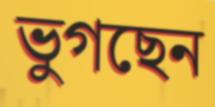
ভুগছেন